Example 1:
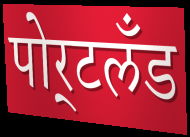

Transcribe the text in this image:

पोर्टलॅंड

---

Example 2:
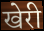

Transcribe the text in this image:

खेरी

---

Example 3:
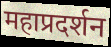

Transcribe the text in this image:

महाप्रदर्शन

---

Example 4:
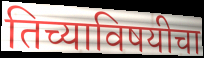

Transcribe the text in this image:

तिच्याविषयीचा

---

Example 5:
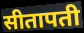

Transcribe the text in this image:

सीतापती